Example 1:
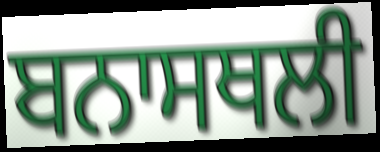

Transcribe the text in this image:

ਬਨਾਸਥਲੀ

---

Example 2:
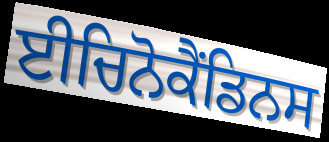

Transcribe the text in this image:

ਈਚਿਨੋਕੈਂਡਿਨਸ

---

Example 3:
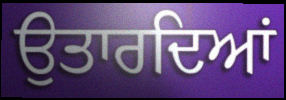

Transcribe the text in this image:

ਉਤਾਰਦਿਆਂ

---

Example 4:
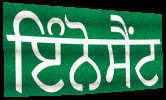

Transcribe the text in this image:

ਇੰਨੋਸੈਂਟ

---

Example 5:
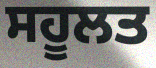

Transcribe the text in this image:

ਸਹੂਲਤ